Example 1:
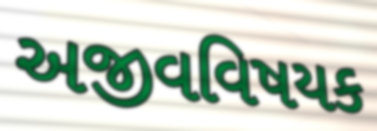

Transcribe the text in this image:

અજીવવિષયક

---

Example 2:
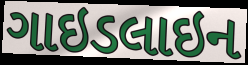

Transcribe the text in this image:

ગાઇડલાઇન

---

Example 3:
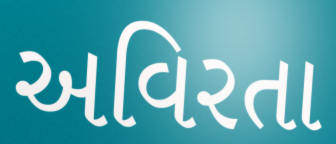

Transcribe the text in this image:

અવિરતા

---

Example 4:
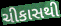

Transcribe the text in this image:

ચીકાસથી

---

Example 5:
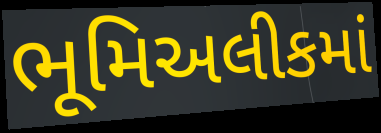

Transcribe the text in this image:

ભૂમિઅલીકમાં